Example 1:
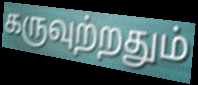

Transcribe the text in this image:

கருவுற்றதும்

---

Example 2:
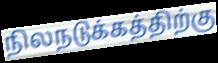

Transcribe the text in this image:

நிலநடுக்கத்திற்கு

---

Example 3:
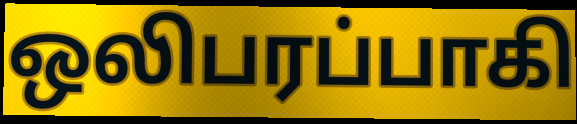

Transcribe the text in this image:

ஒலிபரப்பாகி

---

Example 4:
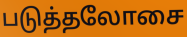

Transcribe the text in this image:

படுத்தலோசை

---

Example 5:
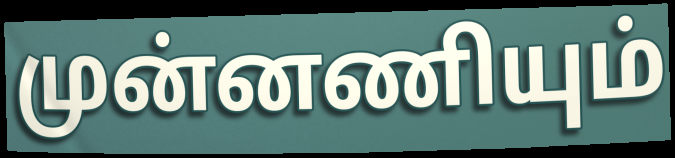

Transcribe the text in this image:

முன்னணியும்